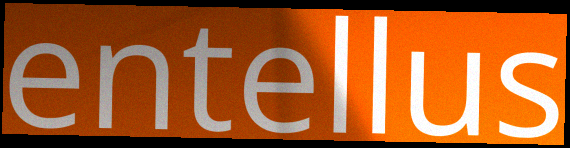
entellus